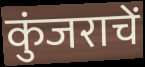
कुंजराचें